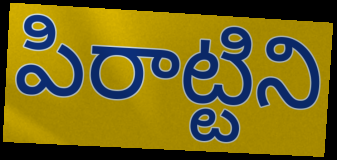
పిరాట్టిని